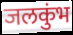
जलकुंभ